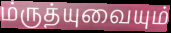
ம்ருத்யுவையும்